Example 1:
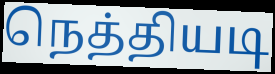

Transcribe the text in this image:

நெத்தியடி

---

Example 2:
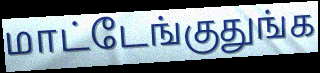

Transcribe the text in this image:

மாட்டேங்குதுங்க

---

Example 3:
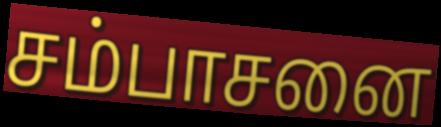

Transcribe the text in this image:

சம்பாசனை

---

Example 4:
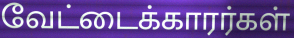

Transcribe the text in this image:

வேட்டைக்காரர்கள்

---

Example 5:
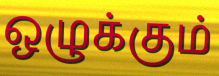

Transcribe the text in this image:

ஒழுக்கும்